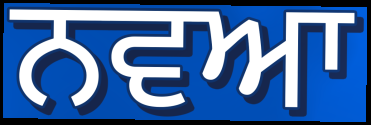
ਨਵਆ